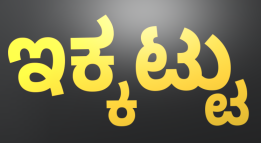
ಇಕ್ಕಟ್ಟು